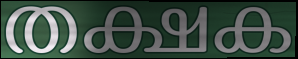
തക്ഷക